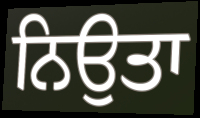
ਨਿਉਤਾ